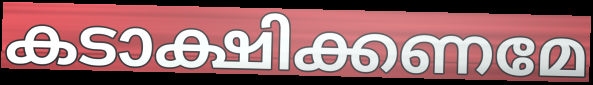
കടാക്ഷിക്കണമേ